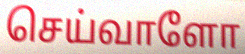
செய்வாளோ